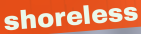
shoreless